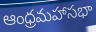
ఆంధ్రమహాసభా